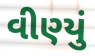
વીણ્યું